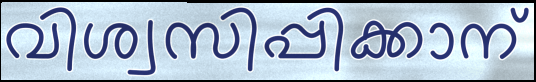
വിശ്വസിപ്പിക്കാന്